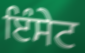
ਇੰਸੇਟ